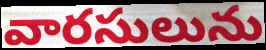
వారసులును